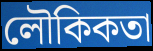
লৌকিকতা